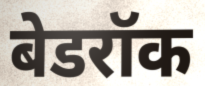
बेडरॉक